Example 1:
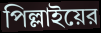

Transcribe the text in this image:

পিল্লাইয়ের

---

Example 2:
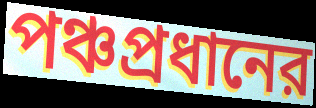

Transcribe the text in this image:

পঞ্চপ্রধানের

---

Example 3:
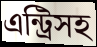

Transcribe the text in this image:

এন্ট্রিসহ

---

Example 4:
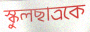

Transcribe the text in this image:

স্কুলছাত্রকে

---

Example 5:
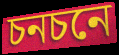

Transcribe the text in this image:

চনচনে